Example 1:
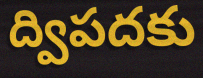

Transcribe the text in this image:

ద్విపదకు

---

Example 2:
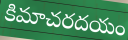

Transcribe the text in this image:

కిమాచరదయం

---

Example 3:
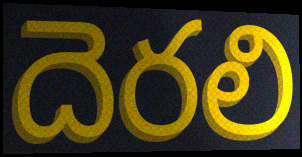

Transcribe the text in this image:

దెరలి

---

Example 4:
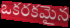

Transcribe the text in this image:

ఒకరకమైన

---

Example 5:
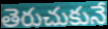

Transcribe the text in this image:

తెరుచుకునే